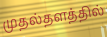
முதல்தளத்தில்